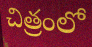
చిత్రంలో